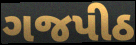
ગજપીઠ